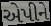
એપીને